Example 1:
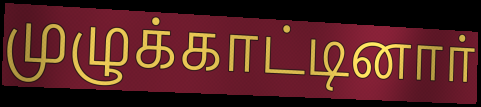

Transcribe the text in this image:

முழுக்காட்டினார்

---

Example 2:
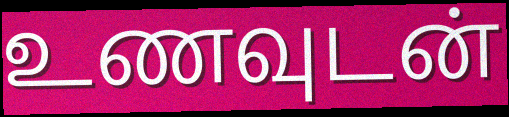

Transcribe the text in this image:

உணவுடன்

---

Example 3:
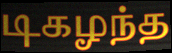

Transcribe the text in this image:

டிகழந்த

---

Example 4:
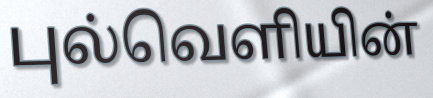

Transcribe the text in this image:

புல்வெளியின்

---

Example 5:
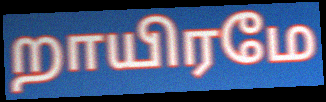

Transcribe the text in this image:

றாயிரமே